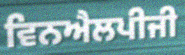
ਵਿਨਐਲਪੀਜੀ